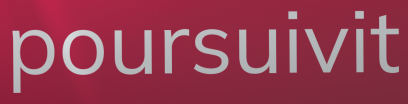
poursuivit